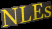
NLEs